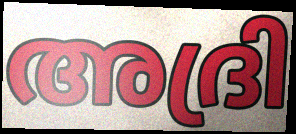
അദ്രി